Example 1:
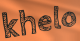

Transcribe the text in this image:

khelo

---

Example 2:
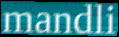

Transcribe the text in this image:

mandli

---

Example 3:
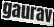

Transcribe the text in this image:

gaurav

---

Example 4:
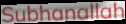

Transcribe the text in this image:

Subhanallah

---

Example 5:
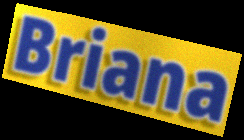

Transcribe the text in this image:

Briana